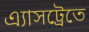
এ্যাসট্রেতে